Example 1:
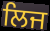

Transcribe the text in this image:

ਲਿਜ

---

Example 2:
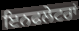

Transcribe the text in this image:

ਇਨਫਲੇਟਰਾਂ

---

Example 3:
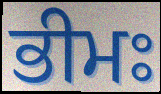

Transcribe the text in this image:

ਭੀਮਃ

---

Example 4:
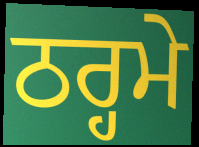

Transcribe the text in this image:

ਠਰ੍ਹਮੇ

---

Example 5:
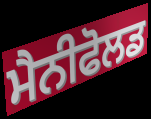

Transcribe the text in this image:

ਮੈਨੀਫੋਲਡ